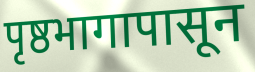
पृष्ठभागापासून